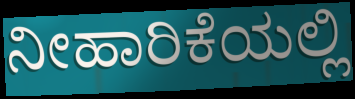
ನೀಹಾರಿಕೆಯಲ್ಲಿ